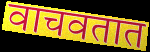
वाचवतात